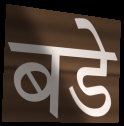
बडे